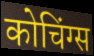
कोचिंग्स